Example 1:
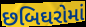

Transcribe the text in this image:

છબિઘરોમાં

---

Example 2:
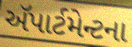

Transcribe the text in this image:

ઍપાર્ટમેન્ટના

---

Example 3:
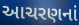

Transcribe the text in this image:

આચરણનાં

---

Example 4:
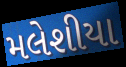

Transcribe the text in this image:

મલેશીયા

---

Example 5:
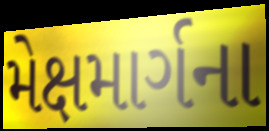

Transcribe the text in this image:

મેક્ષમાર્ગના